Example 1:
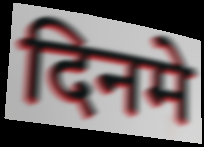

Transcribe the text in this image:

दिनमे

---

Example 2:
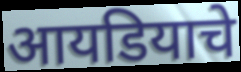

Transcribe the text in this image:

आयडियाचे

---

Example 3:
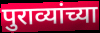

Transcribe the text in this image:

पुराव्यांच्या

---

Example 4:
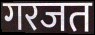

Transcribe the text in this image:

गरजत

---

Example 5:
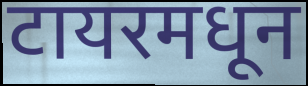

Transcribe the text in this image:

टायरमधून